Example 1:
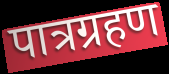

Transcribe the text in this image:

पात्रग्रहण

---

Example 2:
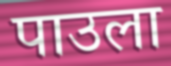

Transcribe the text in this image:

पाउला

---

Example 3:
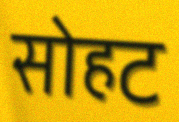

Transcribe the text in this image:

सोहट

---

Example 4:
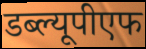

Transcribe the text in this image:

डब्ल्यूपीएफ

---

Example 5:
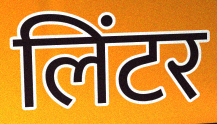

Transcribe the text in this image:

लिंटर